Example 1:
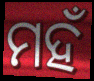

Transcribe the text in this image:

ମହଁ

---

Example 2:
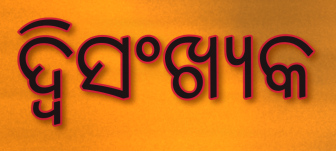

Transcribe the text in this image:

ଦ୍ୱିସଂଖ୍ୟକ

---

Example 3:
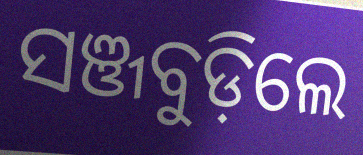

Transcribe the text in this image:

ସଞ୍ଜବୁଡ଼ିଲେ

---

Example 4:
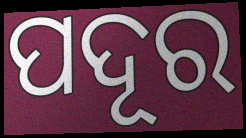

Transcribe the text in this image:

ପଦୂର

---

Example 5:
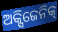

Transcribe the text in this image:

ଅକ୍ସିଜେନିକ୍